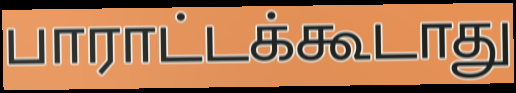
பாராட்டக்கூடாது